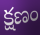
క్షణం